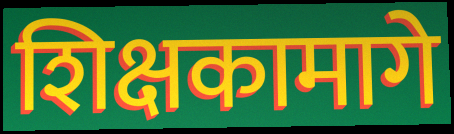
शिक्षकामागे